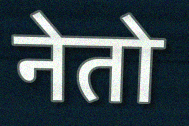
नेतो